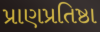
પ્રાણપ્રતિષ્ઠા